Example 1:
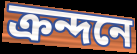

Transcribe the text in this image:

ক্রন্দনে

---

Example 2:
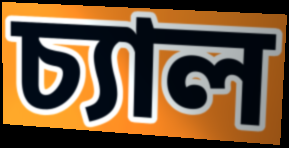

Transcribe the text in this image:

চ্যাল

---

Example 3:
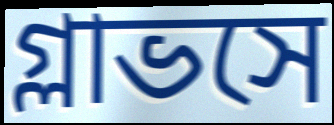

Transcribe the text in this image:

গ্লাভসে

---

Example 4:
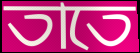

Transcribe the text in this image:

তাতে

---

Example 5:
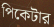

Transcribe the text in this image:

পিকেটার